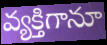
వ్యక్తిగానూ